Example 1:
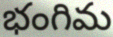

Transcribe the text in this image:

భంగిమ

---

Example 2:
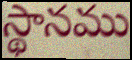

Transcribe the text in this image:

స్థానము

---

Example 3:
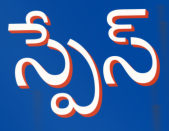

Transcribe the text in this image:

స్పేస్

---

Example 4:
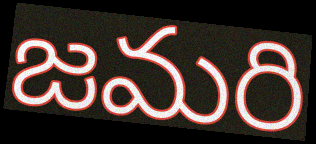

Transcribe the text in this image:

జమరి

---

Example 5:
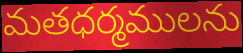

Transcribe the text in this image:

మతధర్మములను